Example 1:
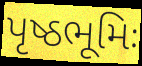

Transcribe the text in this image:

પૃષ્ઠભૂમિઃ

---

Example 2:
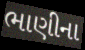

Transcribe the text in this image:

ભાણીના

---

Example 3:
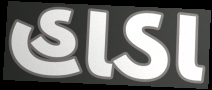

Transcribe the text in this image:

હાડા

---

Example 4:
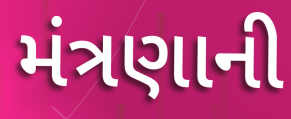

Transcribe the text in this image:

મંત્રણાની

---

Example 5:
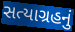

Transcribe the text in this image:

સત્યાગ્રહનું